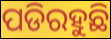
ପଡିରହୁଛି